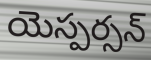
యెస్పర్సన్